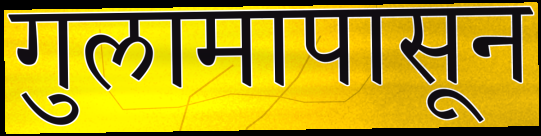
गुलामापासून